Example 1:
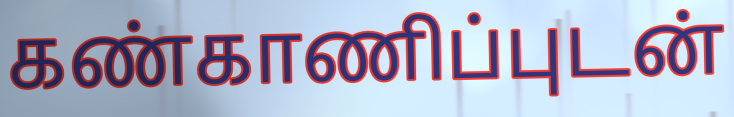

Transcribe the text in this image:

கண்காணிப்புடன்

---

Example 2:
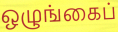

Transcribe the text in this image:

ஒழுங்கைப்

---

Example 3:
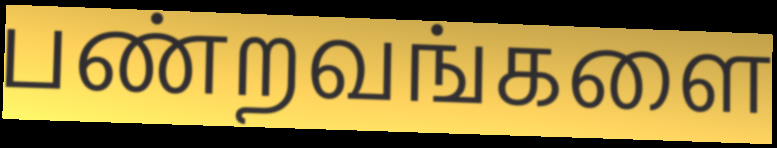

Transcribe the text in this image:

பண்றவங்களை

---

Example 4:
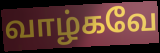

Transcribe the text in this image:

வாழ்கவே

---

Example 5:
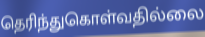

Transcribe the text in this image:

தெரிந்துகொள்வதில்லை